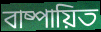
বাষ্পায়িত